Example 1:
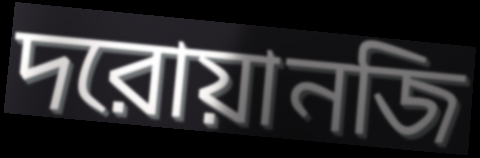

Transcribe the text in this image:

দরোয়ানজি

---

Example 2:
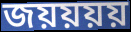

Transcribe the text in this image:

জয়য়য়য়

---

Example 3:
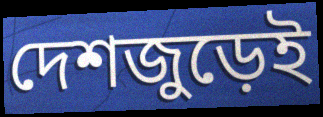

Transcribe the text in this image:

দেশজুড়েই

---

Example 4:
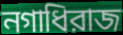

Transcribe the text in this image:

নগাধিরাজ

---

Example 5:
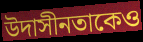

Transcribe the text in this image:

উদাসীনতাকেও